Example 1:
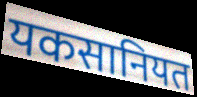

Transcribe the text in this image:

यकसानियत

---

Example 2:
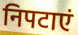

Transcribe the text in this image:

निपटाएं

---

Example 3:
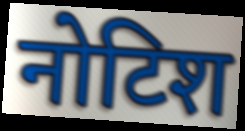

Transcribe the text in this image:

नोटिश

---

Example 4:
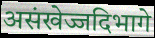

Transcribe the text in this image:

असंखेज्जदिभागे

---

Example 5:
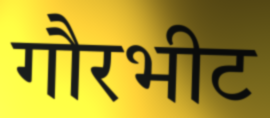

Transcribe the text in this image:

गौरभीट